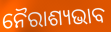
ନୈରାଶ୍ୟଭାବ